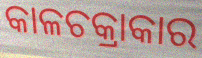
କାଳଚକ୍ରାକାର